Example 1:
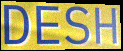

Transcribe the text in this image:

DESH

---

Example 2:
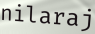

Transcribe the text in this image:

nilaraj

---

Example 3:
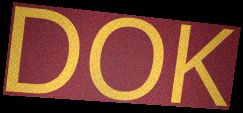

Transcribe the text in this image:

DOK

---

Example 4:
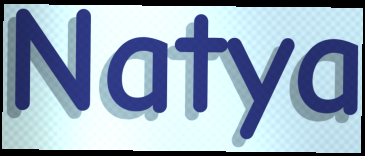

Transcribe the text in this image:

Natya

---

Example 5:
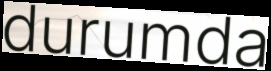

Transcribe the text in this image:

durumda